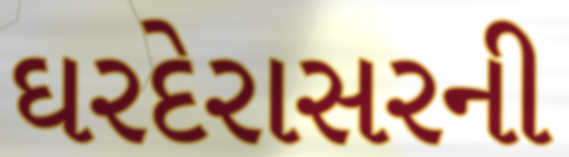
ઘરદેરાસરની